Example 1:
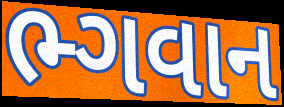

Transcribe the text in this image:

ભ્ગવાન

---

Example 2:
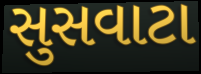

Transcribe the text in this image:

સુસવાટા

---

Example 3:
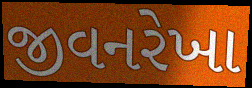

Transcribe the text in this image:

જીવનરેખા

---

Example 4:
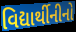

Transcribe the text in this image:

વિદ્યાર્થીનીનો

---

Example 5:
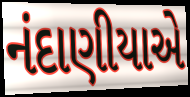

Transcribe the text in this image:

નંદાણીયાએ